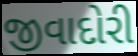
જીવાદોરી